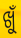
ଖୁଁ